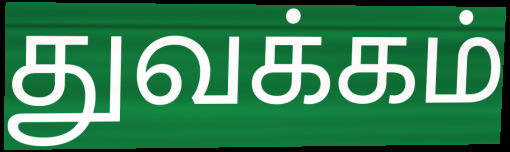
துவக்கம்